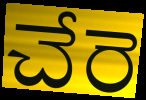
చేరె